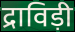
द्राविड़ी